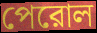
পেরোল